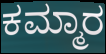
ಕಮ್ಮಾರ